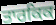
ਤਾਰਕਿਕ